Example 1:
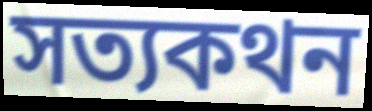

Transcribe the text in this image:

সত্যকথন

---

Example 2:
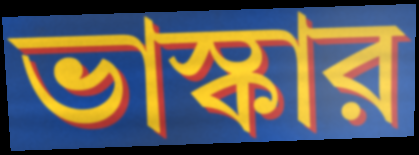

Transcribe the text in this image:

ভাস্কার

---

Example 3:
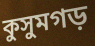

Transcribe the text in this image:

কুসুমগড়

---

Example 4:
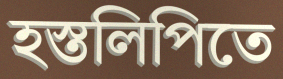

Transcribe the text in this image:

হস্তলিপিতে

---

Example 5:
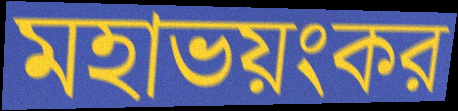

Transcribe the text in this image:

মহাভয়ংকর